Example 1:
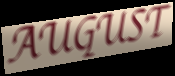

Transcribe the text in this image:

AUGUST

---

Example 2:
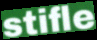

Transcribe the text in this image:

stifle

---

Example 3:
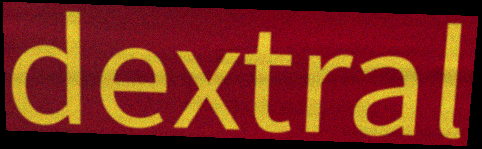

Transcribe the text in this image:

dextral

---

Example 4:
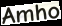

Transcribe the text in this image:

Amho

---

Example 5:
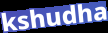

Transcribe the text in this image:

kshudha